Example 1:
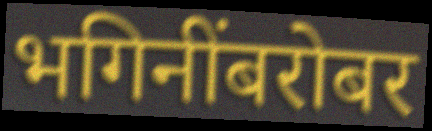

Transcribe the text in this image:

भगिनींबरोबर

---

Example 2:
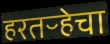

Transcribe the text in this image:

हरतऱ्हेचा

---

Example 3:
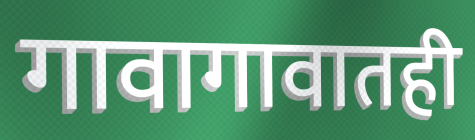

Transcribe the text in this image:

गावागावातही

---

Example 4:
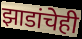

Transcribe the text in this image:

झाडांचेही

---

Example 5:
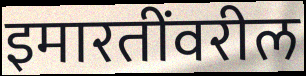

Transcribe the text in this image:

इमारतींवरील